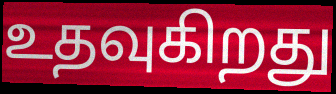
உதவுகிறது